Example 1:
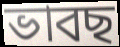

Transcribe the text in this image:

ভাবছ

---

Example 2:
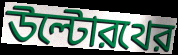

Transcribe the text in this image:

উল্টোরথের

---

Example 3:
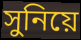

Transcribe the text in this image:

সুনিয়ে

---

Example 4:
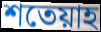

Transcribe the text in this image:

শতেয়াহ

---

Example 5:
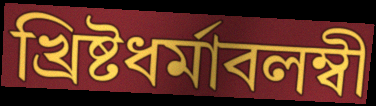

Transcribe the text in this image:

খ্রিষ্টধর্মাবলম্বী